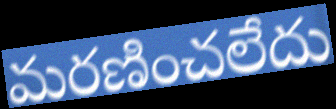
మరణించలేదు